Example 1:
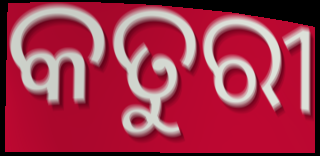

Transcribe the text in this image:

କତୁରୀ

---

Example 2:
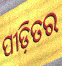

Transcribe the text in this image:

ପୀଡ଼ିତର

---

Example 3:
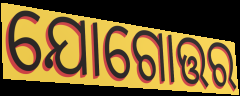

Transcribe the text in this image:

ଯୋଗୋତ୍ତର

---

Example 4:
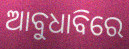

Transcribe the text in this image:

ଆବୁଧାବିରେ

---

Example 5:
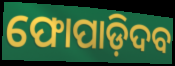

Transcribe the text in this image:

ଫୋପାଡ଼ିଦବ